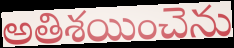
అతిశయించెను